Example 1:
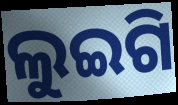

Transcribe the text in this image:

ଲୁଇଗି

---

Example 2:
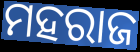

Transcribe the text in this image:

ମହରାଜ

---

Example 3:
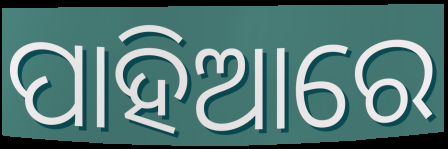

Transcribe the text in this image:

ପାହିଆରେ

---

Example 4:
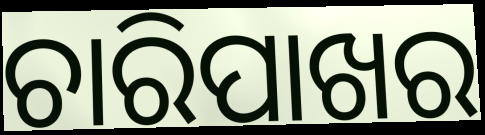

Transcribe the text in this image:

ଚାରିପାଖର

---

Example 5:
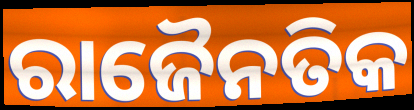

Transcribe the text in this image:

ରାଜୈନତିକ